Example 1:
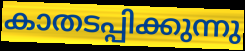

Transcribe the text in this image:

കാതടപ്പിക്കുന്നു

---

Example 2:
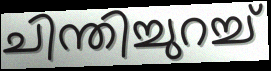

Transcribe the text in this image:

ചിന്തിച്ചുറച്ച്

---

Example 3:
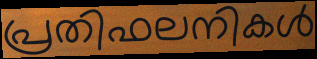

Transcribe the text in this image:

പ്രതിഫലനികൾ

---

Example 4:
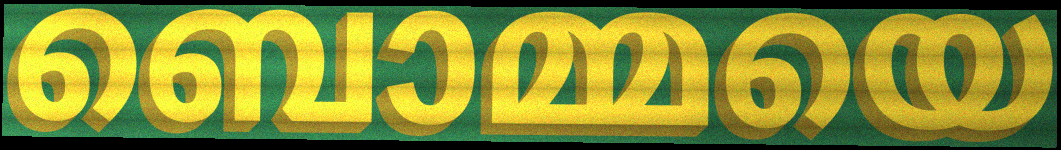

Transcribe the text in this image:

ബൊമ്മയെ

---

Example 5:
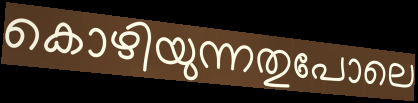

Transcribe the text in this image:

കൊഴിയുന്നതുപോലെ